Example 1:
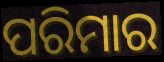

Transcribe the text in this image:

ପରିମାର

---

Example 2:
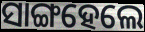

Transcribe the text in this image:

ସାଙ୍ଗହେଲେ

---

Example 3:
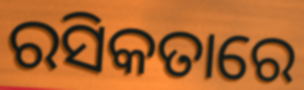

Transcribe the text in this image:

ରସିକତାରେ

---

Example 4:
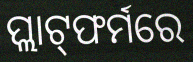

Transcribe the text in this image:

ପ୍ଲାଟ୍‌ଫର୍ମରେ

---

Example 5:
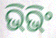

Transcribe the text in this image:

ଭିଭିଂ